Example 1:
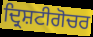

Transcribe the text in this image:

ਦ੍ਰਿਸ਼ਟੀਗੋਚਰ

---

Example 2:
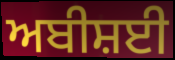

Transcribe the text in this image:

ਅਬੀਸ਼ਈ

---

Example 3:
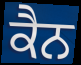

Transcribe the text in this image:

ਕੈਨ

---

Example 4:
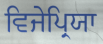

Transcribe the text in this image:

ਵਿਜੇਪ੍ਰਿਯਾ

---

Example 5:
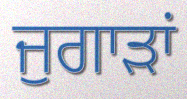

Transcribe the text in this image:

ਜੁਗਾੜਾਂ